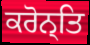
ਕਰੋਨ੍ਤਿ